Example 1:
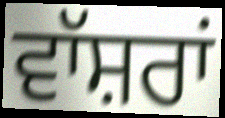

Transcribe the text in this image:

ਵਾੱਸ਼ਰਾਂ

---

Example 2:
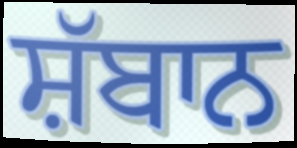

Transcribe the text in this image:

ਸ਼ੱਬਾਨ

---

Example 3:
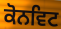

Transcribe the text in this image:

ਕੋਨਵਿਟ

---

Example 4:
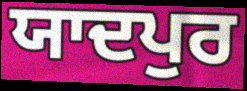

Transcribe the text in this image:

ਯਾਦਪੁਰ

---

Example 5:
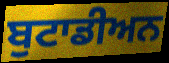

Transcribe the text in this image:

ਬੁਟਾਡੀਅਨ